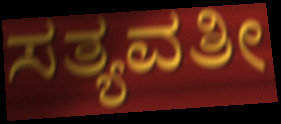
ಸತ್ಯವತೀ